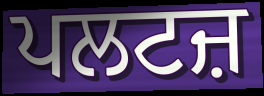
ਪਲਟਜ਼